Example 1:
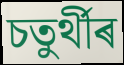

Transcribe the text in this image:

চতুৰ্থীৰ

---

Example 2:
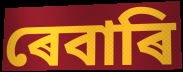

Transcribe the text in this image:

ৰেবাৰি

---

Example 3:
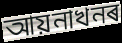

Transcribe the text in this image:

আয়নাখনৰ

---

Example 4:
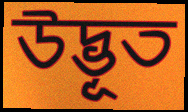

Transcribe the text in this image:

উদ্ভূত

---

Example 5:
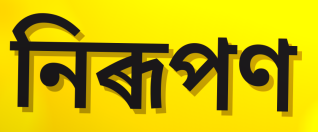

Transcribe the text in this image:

নিৰূপণ